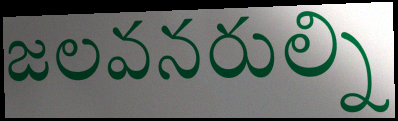
జలవనరుల్ని